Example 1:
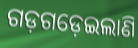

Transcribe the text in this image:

ଗଡ଼ଗଡ଼େଇଲାଣି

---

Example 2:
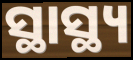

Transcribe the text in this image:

ସ୍ଥାସ୍ଥ୍ୟ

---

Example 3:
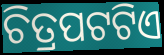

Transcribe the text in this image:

ଚିତ୍ରପଟଟିଏ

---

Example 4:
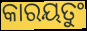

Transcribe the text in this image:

କାରୟତୁଂ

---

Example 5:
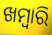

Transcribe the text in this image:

ଖମ୍ୱାରି